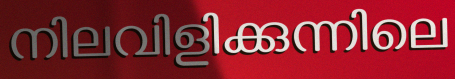
നിലവിളിക്കുന്നിലെ